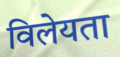
विलेयता